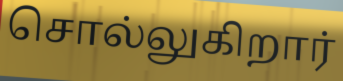
சொல்லுகிறார்